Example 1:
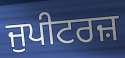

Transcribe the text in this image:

ਜੁਪੀਟਰਜ਼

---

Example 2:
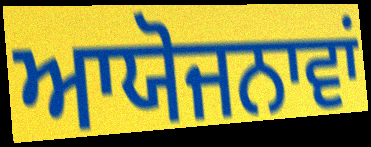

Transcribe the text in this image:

ਆਯੋਜਨਾਵਾਂ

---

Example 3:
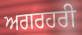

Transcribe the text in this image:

ਅਗਰਹਰੀ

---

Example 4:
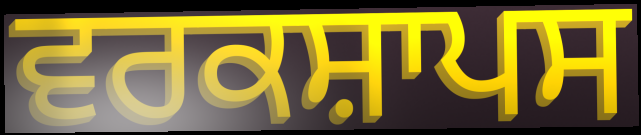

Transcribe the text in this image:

ਵਰਕਸ਼ਾਪਸ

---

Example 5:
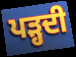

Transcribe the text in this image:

ਪਡ਼੍ਹਦੀ